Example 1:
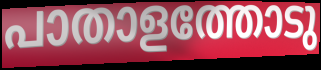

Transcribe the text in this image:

പാതാളത്തോടു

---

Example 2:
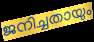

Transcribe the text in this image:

ജനിച്ചതായും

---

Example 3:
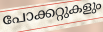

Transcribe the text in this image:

പോക്കറ്റുകളും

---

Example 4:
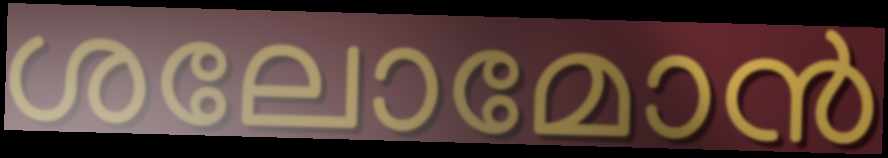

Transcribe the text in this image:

ശലോമോൻ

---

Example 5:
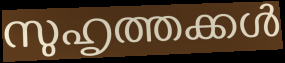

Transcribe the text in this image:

സുഹൃത്തക്കൾ